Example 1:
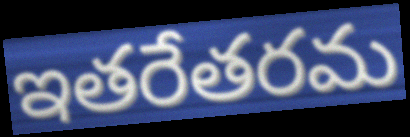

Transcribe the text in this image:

ఇతరేతరమ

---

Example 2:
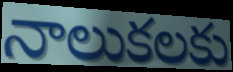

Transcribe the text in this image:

నాలుకలకు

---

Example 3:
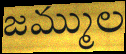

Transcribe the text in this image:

జమ్ముల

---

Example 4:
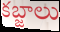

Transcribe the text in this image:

కబ్జాలు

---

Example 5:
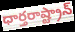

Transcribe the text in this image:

ధార్తరాష్ట్రాన్